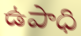
ఉపాధి